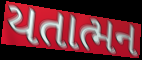
યતાત્મન